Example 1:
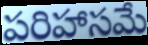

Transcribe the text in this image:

పరిహాసమే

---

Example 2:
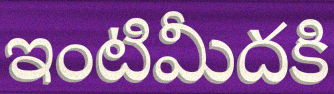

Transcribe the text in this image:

ఇంటిమీదకి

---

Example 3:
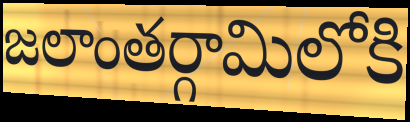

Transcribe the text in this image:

జలాంతర్గామిలోకి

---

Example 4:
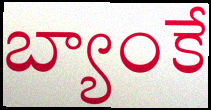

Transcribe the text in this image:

బ్యాంకే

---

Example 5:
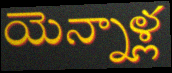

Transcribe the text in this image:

యెన్నాళ్ల